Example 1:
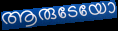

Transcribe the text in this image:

ആരുടേയോ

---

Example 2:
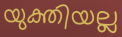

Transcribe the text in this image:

യുക്തിയല്ല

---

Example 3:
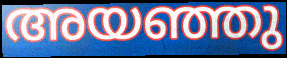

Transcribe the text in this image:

അയഞ്ഞു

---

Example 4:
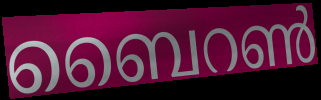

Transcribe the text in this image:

ബൈറൺ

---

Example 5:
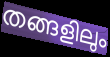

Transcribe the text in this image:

തങ്ങളിലും